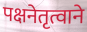
पक्षनेतृत्वाने